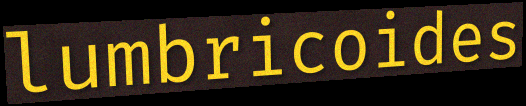
lumbricoides